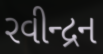
રવીન્દ્રન